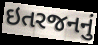
ઇતરજનનું